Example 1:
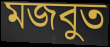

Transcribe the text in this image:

মজবুত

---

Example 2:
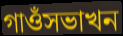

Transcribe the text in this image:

গাওঁসভাখন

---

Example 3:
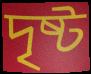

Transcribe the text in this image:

দৃষ্ট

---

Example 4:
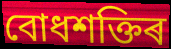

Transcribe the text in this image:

বোধশক্তিৰ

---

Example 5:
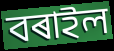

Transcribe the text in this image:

বৰাইল